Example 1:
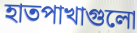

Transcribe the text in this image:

হাতপাখাগুলো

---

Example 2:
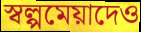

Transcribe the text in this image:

স্বল্পমেয়াদেও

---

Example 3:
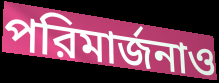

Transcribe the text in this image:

পরিমার্জনাও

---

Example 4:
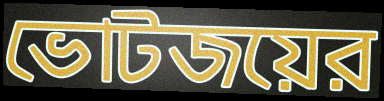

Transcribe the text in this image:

ভোটজয়ের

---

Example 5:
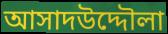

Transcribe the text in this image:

আসাদউদ্দৌলা